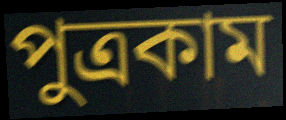
পুত্রকাম